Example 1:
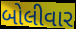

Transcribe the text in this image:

બોલીવાર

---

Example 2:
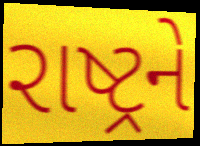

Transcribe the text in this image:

રાષ્ટ્રને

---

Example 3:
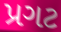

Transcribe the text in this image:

પ્રગટ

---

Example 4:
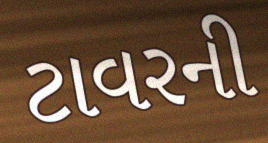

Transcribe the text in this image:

ટાવરની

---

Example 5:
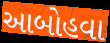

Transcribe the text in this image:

આબોહવા